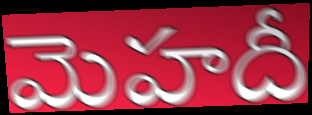
మెహదీ